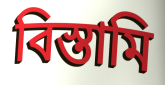
বিস্তামি